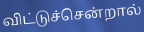
விட்டுச்சென்றால்